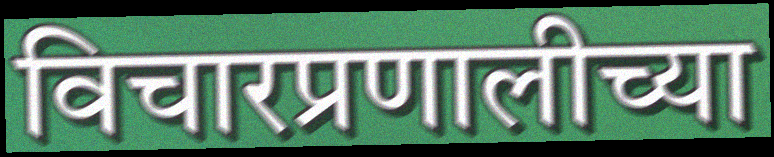
विचारप्रणालीच्या